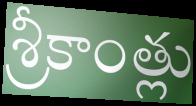
శ్రీకాంత్లు